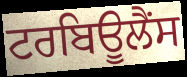
ਟਰਬਿਊਲੈਂਸ